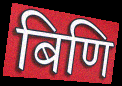
बिणि